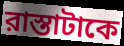
রাস্তাটাকে